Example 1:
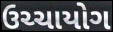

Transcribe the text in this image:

ઉચ્ચાયોગ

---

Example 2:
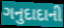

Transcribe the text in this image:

ગનુદાદાની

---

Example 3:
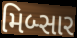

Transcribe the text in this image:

મિબ્સાર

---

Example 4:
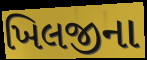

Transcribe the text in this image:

ખિલજીના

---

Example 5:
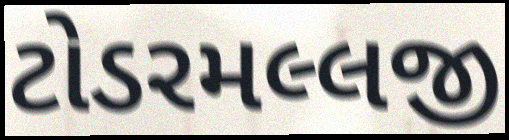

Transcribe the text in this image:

ટોડરમલ્લજી